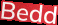
Bedd